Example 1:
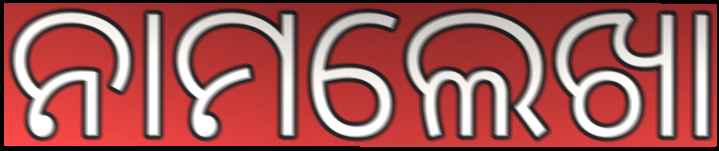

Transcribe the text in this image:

ନାମଲେଖା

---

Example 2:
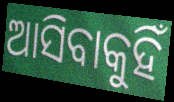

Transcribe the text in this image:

ଆସିବାକୁହିଁ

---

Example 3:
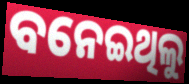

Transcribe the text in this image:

ବନେଇଥିଲୁ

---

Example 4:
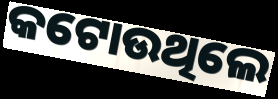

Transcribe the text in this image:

କଟୋଉଥିଲେ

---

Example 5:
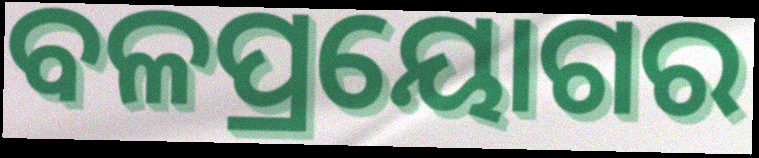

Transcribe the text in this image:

ବଳପ୍ରୟୋଗର